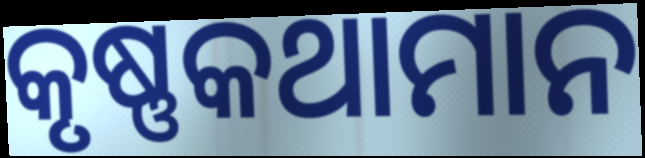
କୃଷ୍ଣକଥାମାନ